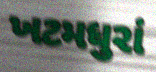
ખટમધુરાં